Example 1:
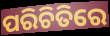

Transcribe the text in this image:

ପରିଚିତିରେ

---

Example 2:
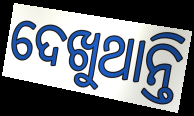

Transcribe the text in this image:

ଦେଖୁଥାନ୍ତି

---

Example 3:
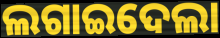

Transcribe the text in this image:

ଲଗାଇଦେଲା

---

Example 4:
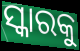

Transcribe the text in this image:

ସ୍କାରକୁ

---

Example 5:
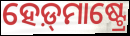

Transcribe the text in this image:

ହେଡ଼୍‌ମାଷ୍ଟ୍ରେ